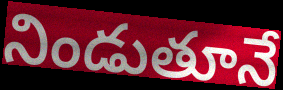
నిండుతూనే